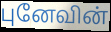
புனேவின்